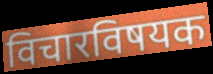
विचारविषयक